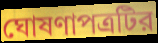
ঘোষণাপত্রটির